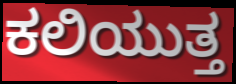
ಕಲಿಯುತ್ತ